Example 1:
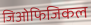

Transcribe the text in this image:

जिओफिजिकल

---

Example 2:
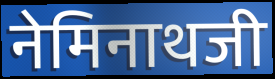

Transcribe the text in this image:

नेमिनाथजी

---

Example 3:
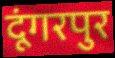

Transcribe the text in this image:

दूंगरपुर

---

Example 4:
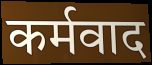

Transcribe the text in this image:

कर्मवाद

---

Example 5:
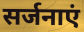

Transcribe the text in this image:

सर्जनाएं